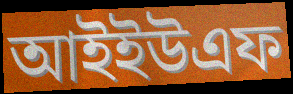
আইইউএফ